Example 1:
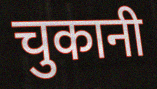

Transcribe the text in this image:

चुकानी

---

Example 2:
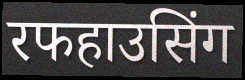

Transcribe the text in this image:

रफहाउसिंग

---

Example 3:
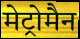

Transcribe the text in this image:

मेट्रोमैन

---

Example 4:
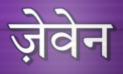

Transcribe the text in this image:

ज़ेवेन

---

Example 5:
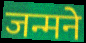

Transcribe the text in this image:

जन्मने